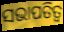
ସଭାପତିତ୍ବ